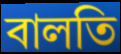
বালতি